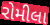
રોમીલા